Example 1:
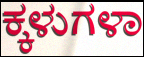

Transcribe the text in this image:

ಕ್ಕಳುಗಳಾ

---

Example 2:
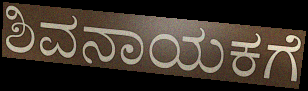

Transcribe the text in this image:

ಶಿವನಾಯಕಗೆ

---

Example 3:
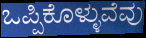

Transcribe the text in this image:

ಒಪ್ಪಿಕೊಳ್ಳುವೆವು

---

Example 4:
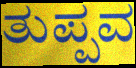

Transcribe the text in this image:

ತುಪ್ಪವ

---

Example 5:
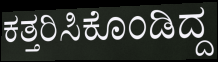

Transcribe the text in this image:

ಕತ್ತರಿಸಿಕೊಂಡಿದ್ದ